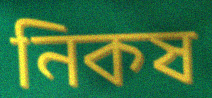
নিকষ